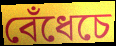
বেঁধেচে